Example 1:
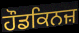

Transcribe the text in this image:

ਹੌਡਕਿਨਜ਼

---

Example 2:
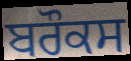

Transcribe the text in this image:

ਬਰੌਕਸ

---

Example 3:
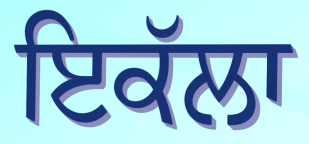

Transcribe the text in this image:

ਇਕੱਲਾ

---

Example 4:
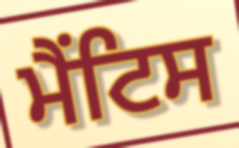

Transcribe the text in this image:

ਮੈਂਟਿਸ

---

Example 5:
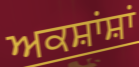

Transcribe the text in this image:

ਅਕਸ਼ਾਂਸ਼ਾਂ